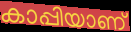
കാപ്പിയാണ്